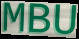
MBU